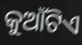
କୁଆଁଟିଏ